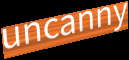
uncanny